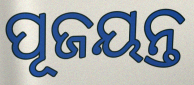
ପୂଜୟନ୍ତ